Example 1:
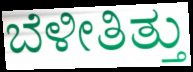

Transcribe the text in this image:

ಬೆಳೀತಿತ್ತು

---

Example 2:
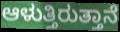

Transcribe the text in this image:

ಆಳುತ್ತಿರುತ್ತಾನೆ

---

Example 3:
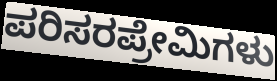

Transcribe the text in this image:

ಪರಿಸರಪ್ರೇಮಿಗಳು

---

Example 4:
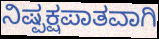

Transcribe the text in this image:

ನಿಷ್ಪಕ್ಷಪಾತವಾಗಿ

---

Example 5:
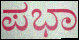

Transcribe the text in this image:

ಪಭಾ